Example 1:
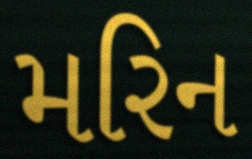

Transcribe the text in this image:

મરિન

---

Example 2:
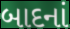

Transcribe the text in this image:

બાદનાં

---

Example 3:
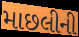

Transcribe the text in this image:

માછલીની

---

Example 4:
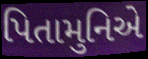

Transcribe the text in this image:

પિતામુનિએ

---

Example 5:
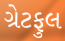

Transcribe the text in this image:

ગ્રેટફુલ